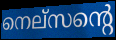
നെല്സന്റെ